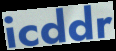
icddr